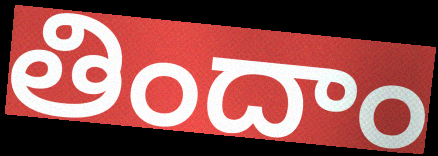
తిందాం